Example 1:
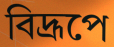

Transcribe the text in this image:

বিদ্রূপে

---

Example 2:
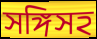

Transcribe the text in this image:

সঙ্গিসহ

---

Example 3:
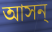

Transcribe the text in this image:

আসন্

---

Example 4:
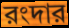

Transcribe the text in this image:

রংদার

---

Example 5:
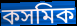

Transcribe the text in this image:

কসমিক